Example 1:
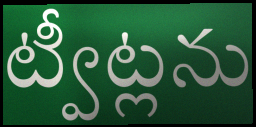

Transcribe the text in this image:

ట్వీట్లను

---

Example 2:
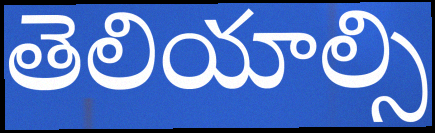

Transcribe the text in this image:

తెలియాల్సి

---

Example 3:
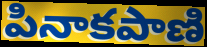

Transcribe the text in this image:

పినాకపాణి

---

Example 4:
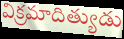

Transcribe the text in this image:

విక్రమాదిత్యుడు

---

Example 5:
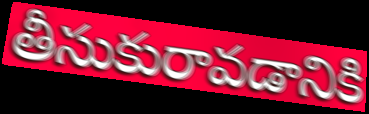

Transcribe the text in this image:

తీసుకురావడానికి